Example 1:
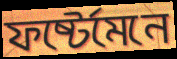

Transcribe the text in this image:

ফৰ্ষ্টেমেনে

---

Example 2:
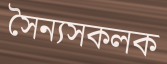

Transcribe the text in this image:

সৈন্যসকলক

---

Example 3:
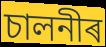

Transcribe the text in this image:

চালনীৰ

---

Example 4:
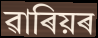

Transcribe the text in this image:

ৱাৰিয়ৰ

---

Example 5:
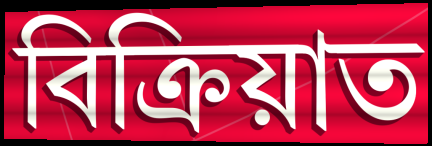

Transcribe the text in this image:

বিক্ৰিয়াত